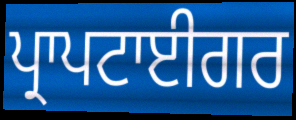
ਪ੍ਰਾਪਟਾਈਗਰ